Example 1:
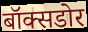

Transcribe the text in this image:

बॉक्सडोर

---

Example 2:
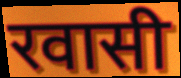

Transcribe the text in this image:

रवासी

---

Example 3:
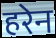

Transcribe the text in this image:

हरेन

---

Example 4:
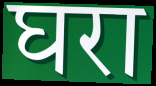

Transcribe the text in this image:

घरा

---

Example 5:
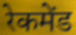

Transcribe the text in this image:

रेकमेंड